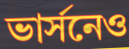
ভার্সনেও